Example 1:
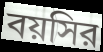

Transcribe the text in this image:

বয়সির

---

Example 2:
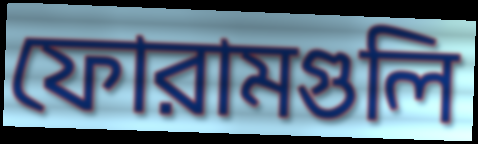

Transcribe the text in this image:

ফোরামগুলি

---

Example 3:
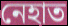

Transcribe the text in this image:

নেহাত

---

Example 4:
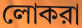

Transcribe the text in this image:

লোকরা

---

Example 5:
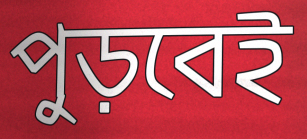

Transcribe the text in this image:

পুড়বেই